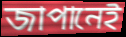
জাপানেই